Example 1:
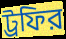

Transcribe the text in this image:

ট্রফির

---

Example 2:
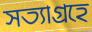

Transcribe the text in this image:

সত্যাগ্রহে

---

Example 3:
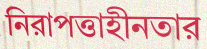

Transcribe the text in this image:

নিরাপত্তাহীনতার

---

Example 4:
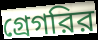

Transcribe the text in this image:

গ্রেগরির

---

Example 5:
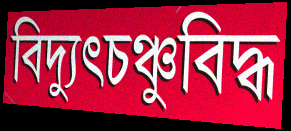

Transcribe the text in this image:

বিদ্যুৎচঞ্চুবিদ্ধ